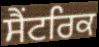
ਸੈਂਟਰਿਕ